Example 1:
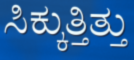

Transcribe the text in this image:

ಸಿಕ್ಕುತ್ತಿತ್ತು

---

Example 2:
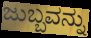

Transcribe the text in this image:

ಜುಬ್ಬವನ್ನು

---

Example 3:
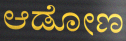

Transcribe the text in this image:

ಆಡೋಣ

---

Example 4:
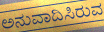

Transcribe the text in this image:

ಅನುವಾದಿಸಿರುವ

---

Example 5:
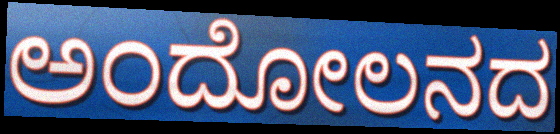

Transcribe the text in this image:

ಅಂದೋಲನದ